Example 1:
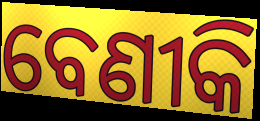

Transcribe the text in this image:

ବେଣୀକି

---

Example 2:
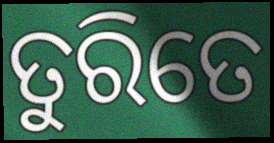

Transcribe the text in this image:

ତୁରିତେ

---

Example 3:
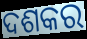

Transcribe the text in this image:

ଦଶକର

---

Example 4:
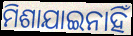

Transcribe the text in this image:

ମିଶାଯାଇନାହିଁ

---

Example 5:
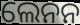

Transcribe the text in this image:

ଲେନନ